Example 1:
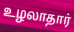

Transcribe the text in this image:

உழலாதார்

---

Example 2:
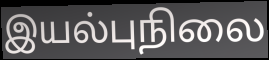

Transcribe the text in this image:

இயல்புநிலை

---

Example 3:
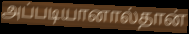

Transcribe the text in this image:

அப்படியானால்தான்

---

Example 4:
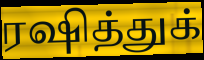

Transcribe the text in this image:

ரஷித்துக்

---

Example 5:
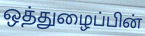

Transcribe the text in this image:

ஒத்துழைப்பின்